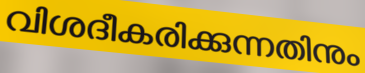
വിശദീകരിക്കുന്നതിനും